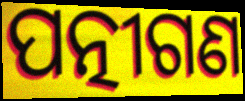
ପତ୍ନୀଗଣ